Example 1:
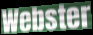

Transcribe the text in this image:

Webster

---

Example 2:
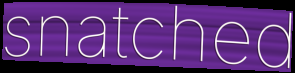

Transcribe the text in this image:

snatched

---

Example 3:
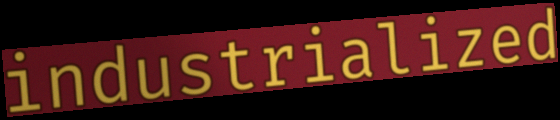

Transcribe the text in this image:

industrialized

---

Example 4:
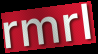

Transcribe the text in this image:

rmrl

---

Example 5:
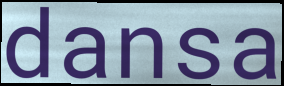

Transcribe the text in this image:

dansa